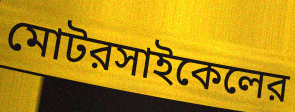
মোটরসাইকেলের